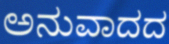
ಅನುವಾದದ